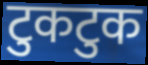
टुकटुक